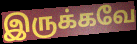
இருக்கவே